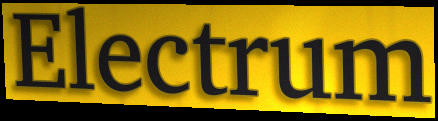
Electrum